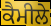
ਕੈਮੀਲੇ